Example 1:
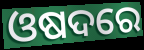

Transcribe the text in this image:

ଓଷଦରେ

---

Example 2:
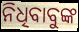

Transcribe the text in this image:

ନିଧିବାବୁଙ୍କ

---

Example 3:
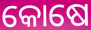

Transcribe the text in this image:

କୋଷେ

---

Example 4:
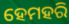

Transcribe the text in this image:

ହେମହରି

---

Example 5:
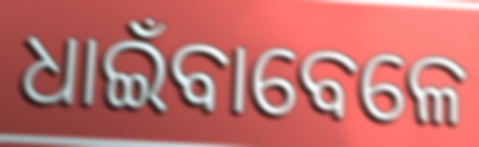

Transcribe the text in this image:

ଧାଇଁବାବେଳେ